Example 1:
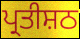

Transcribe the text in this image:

ਪ੍ਰਤੀਸ਼ਠ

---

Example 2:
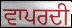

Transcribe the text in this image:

ਵਾਪਰਦੀ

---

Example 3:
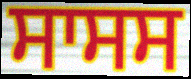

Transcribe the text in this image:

ਸਾਸਸ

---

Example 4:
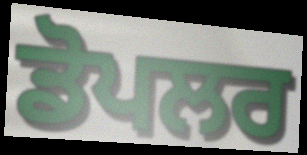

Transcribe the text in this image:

ਡੋਪਲਰ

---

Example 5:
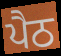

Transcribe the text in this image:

ਪੈਠ